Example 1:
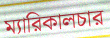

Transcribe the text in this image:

ম্যারিকালচার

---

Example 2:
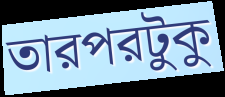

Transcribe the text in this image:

তারপরটুকু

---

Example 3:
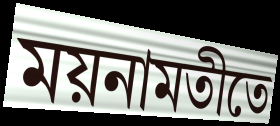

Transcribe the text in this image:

ময়নামতীতে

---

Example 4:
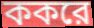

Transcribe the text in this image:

ককরে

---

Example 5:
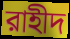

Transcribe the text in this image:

রাহীদ